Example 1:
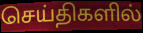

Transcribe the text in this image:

செய்திகளில்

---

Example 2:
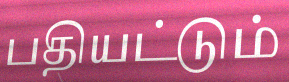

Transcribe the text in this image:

பதியட்டும்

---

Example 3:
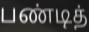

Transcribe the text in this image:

பண்டித்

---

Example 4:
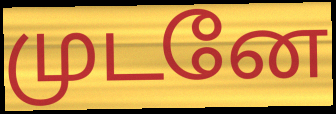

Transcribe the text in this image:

முடனே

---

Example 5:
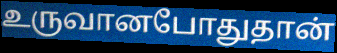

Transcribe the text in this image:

உருவானபோதுதான்